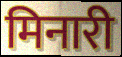
मिनारी